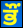
ਭੌਂ